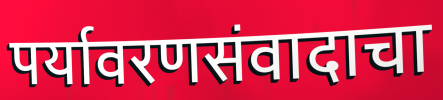
पर्यावरणसंवादाचा